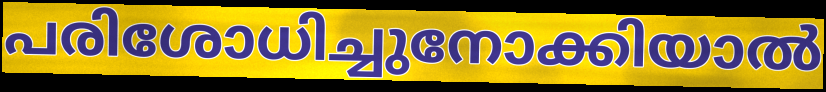
പരിശോധിച്ചുനോക്കിയാൽ